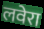
लवेरा